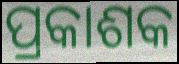
ପ୍ରକାଶକ